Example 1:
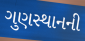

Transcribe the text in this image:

ગુણસ્થાનની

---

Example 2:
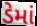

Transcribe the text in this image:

ડેમાં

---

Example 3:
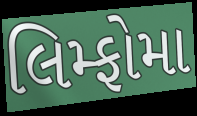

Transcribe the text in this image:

લિમ્ફોમા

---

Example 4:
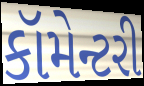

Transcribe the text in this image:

કૉમેન્ટરી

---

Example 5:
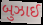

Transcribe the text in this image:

બુઝાઈ